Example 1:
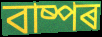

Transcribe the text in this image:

বাষ্পৰ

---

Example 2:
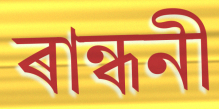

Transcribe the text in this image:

ৰান্ধনী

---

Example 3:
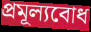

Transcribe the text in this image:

প্ৰমূল্যবোধ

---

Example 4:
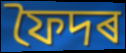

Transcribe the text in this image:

ফৈদৰ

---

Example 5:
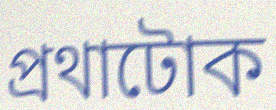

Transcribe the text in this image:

প্ৰথাটোক